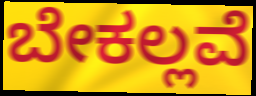
ಬೇಕಲ್ಲವೆ